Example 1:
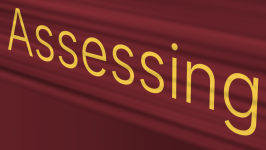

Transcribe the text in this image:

Assessing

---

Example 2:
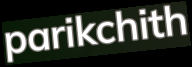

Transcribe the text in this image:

parikchith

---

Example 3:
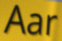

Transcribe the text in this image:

Aar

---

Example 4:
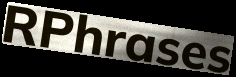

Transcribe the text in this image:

RPhrases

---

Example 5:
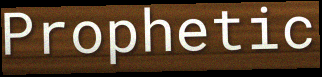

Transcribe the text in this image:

Prophetic